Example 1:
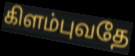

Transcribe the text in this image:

கிளம்புவதே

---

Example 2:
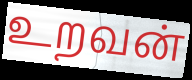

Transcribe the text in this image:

உறவன்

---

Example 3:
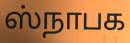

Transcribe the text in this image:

ஸ்நாபக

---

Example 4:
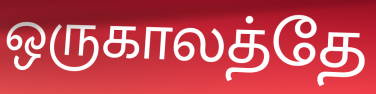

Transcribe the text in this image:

ஒருகாலத்தே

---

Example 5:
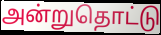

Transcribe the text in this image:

அன்றுதொட்டு